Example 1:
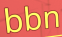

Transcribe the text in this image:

bbn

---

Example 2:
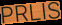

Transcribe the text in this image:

PRLIS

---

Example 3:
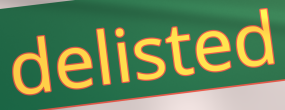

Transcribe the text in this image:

delisted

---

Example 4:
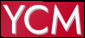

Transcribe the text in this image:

YCM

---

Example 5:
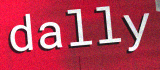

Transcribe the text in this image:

dally